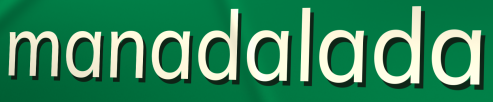
manadalada